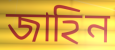
জাহিন